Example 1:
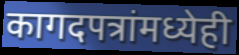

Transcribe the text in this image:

कागदपत्रांमध्येही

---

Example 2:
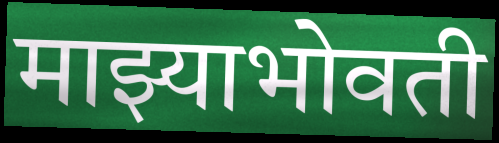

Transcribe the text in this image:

माझ्याभोवती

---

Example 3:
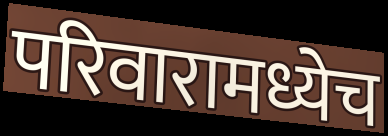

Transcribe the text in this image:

परिवारामध्येच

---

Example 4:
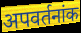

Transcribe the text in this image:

अपवर्तनांक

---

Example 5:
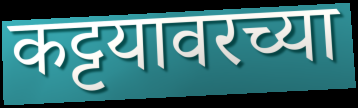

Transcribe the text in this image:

कट्टयावरच्या